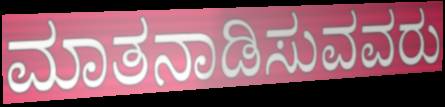
ಮಾತನಾಡಿಸುವವರು